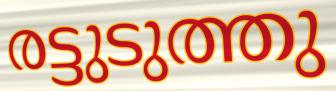
രട്ടുടുത്തു